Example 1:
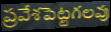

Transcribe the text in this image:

ప్రవేశపెట్టగలవు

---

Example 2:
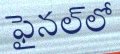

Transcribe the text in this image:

ఫైనల్‌లో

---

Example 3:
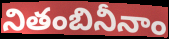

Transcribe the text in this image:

నితంబినీనాం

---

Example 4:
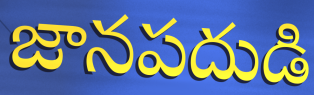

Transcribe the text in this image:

జానపదుడి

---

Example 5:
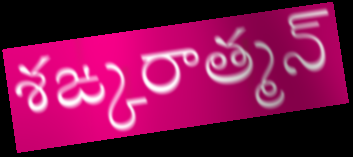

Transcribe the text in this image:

శఙ్కరాత్మన్